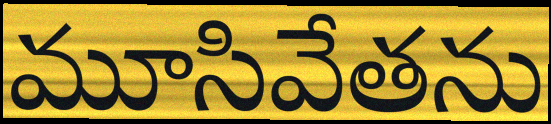
మూసివేతను